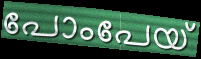
പോംപേയ്